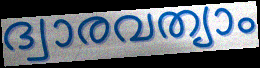
ദ്വാരവത്യാം